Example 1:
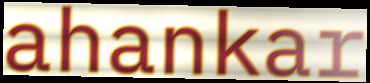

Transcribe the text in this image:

ahankar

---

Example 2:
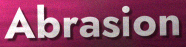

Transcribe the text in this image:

Abrasion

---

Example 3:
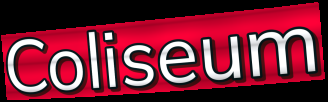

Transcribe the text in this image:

Coliseum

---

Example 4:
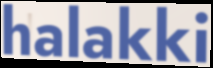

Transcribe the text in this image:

halakki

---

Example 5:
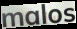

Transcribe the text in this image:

malos